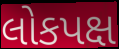
લોકપક્ષ